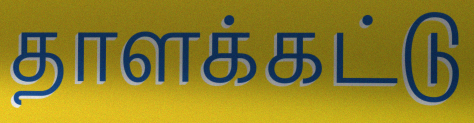
தாளக்கட்டு